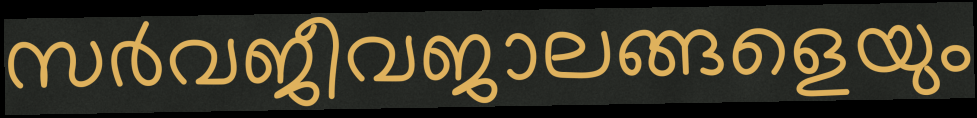
സർവജീവജാലങ്ങളെയും